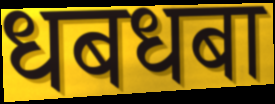
धबधबा